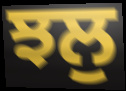
ਝਲੁ